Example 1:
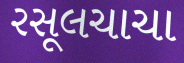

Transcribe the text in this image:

રસૂલચાચા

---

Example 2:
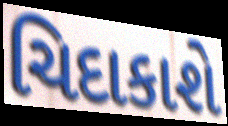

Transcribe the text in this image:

ચિદાકાશે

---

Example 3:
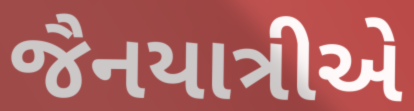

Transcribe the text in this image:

જૈનયાત્રીએ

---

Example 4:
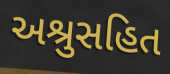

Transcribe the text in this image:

અશ્રુસહિત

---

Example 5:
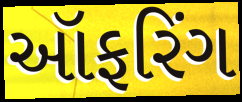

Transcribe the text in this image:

ઑફરિંગ